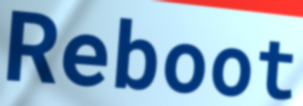
Reboot